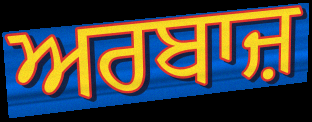
ਅਰਬਾਜ਼